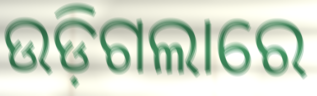
ଉଡ଼ିଗଲାରେ